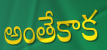
అంతేకాక